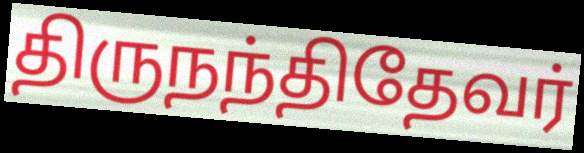
திருநந்திதேவர்